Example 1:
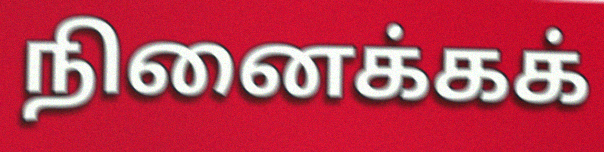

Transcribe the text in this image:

நினைக்கக்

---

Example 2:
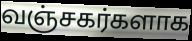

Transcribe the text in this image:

வஞ்சகர்களாக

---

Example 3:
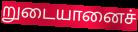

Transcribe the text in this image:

றுடையானைச்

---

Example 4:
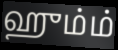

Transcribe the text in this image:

ஹும்ம்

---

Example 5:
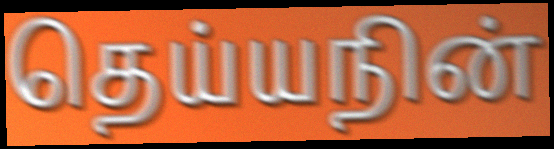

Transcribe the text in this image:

தெய்யநின்